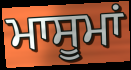
ਮਾਸੂਮਾਂ